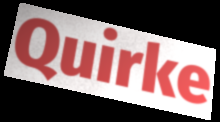
Quirke